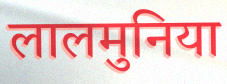
लालमुनिया